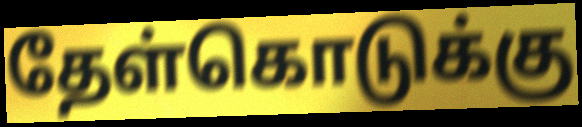
தேள்கொடுக்கு